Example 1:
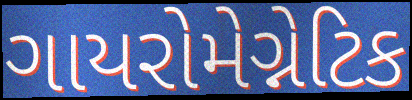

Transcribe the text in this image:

ગાયરોમેગ્નેટિક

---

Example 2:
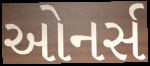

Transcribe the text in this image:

ઓનર્સ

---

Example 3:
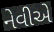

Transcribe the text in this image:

નેવીએ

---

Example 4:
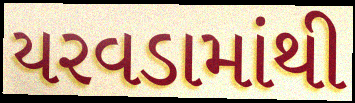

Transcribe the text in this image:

યરવડામાંથી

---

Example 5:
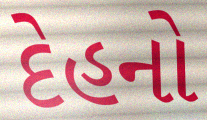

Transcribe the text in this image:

દેહનો